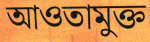
আওতামুক্ত